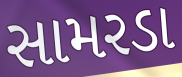
સામરડા